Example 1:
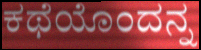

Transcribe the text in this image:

ಕಥೆಯೊಂದನ್ನ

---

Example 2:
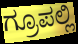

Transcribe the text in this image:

ಗ್ರೂಪಲ್ಲಿ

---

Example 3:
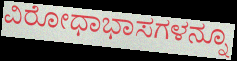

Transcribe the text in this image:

ವಿರೋಧಾಭಾಸಗಳನ್ನೂ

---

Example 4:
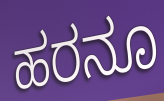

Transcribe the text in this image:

ಹರನೂ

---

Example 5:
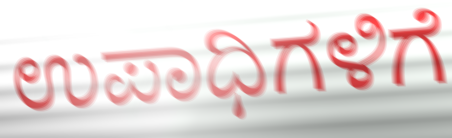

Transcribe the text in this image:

ಉಪಾಧಿಗಳಿಗೆ